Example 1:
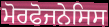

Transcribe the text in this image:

ਮੋਰਫੋਜਨੇਸਿਸ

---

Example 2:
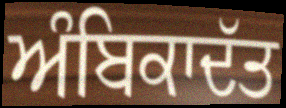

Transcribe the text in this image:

ਅੰਬਿਕਾਦੱਤ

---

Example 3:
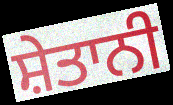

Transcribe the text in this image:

ਸ਼ੇਤਾਨੀ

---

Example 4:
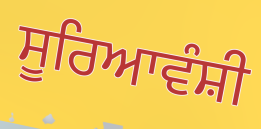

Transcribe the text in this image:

ਸੂਰਿਆਵੰਸ਼ੀ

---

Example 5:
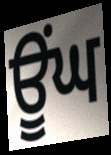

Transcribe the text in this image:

ਊਂਘ